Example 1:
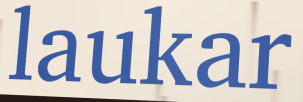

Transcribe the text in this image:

laukar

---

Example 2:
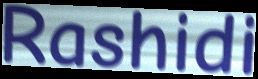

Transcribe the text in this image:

Rashidi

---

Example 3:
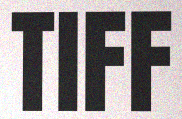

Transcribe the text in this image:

TIFF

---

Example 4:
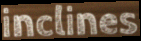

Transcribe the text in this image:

inclines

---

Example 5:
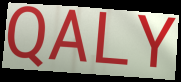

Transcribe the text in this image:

QALY